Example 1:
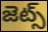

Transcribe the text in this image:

జెట్స్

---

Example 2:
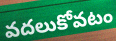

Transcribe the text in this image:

వదలుకోవటం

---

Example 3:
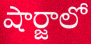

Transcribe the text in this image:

షార్జాలో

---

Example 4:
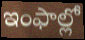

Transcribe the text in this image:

ఇంఫాల్లో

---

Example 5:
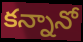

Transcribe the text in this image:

కన్నానో